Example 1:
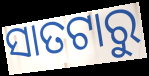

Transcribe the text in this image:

ସାତଟାରୁ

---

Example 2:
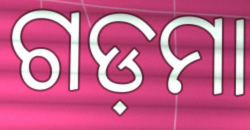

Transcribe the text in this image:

ଗଡ଼ମା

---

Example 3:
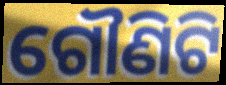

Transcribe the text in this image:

ଗୌଣିଟି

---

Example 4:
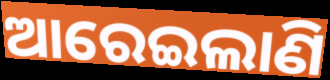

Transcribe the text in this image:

ଆରେଇଲାଣି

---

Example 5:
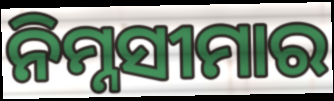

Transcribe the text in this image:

ନିମ୍ନସୀମାର